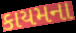
કાયમના